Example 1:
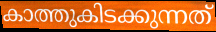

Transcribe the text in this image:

കാത്തുകിടക്കുന്നത്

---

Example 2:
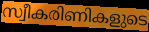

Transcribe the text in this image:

സ്വീകരിണികളുടെ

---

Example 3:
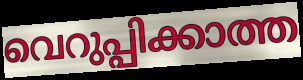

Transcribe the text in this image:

വെറുപ്പിക്കാത്ത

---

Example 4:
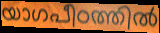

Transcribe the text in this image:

യാഗപീഠത്തിൽ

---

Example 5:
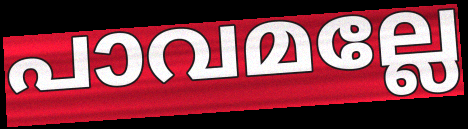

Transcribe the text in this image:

പാവമല്ലേ